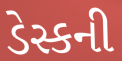
ડેસ્કની